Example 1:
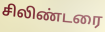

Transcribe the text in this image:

சிலிண்டரை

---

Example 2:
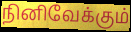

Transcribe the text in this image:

நினிவேக்கும்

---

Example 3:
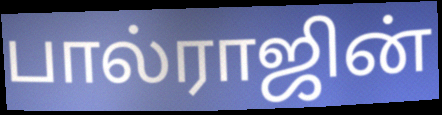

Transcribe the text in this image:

பால்ராஜின்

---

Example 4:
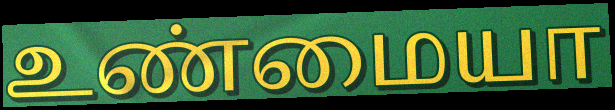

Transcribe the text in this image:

உண்மையா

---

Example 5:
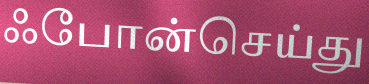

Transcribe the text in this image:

ஃபோன்செய்து